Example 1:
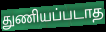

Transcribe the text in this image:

துணியப்படாத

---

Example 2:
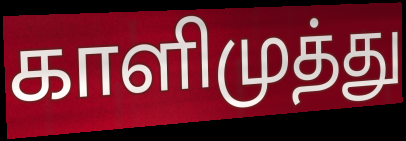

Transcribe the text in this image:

காளிமுத்து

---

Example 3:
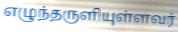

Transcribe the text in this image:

எழுந்தருளியுள்ளவர்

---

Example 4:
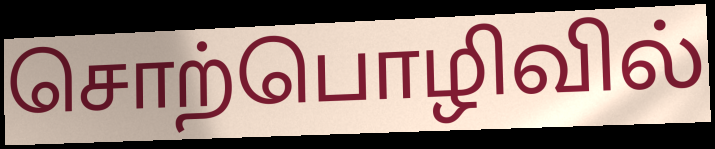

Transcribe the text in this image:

சொற்பொழிவில்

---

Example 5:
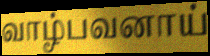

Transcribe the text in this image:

வாழ்பவனாய்